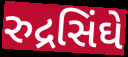
રુદ્રસિંઘે